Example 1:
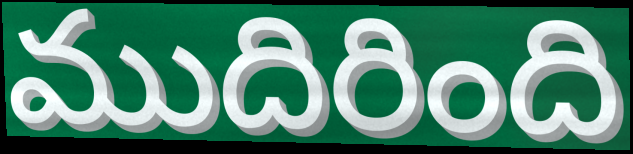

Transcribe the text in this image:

ముదిరింది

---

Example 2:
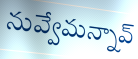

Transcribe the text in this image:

నువ్వేమన్నావ్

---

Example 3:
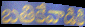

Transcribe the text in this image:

బతికేవాడికి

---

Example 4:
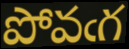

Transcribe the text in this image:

పోవఁగ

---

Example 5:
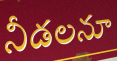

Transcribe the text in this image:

నీడలనూ